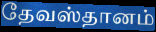
தேவஸ்தானம்